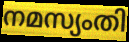
നമസ്യംതി